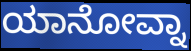
ಯಾನೋವ್ನಾ